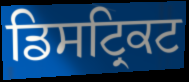
ਡਿਸਟ੍ਰਿਕਟ